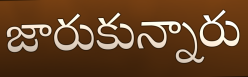
జారుకున్నారు